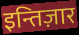
इन्तिज़ार